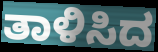
ತಾಳಿಸಿದ